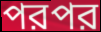
পরপর